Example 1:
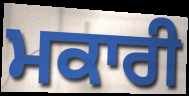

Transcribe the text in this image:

ਮਕਾਰੀ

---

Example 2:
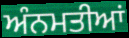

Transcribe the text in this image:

ਅੰਨਮਤੀਆਂ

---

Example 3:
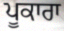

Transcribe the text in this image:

ਪੂਕਾਰਾ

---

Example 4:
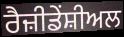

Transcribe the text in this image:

ਰੈਜ਼ੀਡੇਂਸ਼ੀਅਲ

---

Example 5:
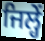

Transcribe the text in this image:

ਜਿਲ੍ਹੇਂ